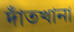
দাঁতখানা